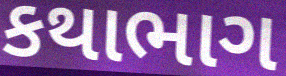
કથાભાગ